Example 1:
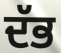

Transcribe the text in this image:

ਦੱਭ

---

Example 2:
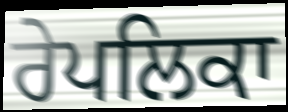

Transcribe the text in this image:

ਰੇਪਲਿਕਾ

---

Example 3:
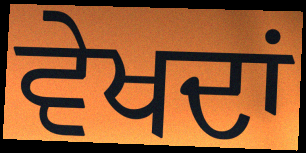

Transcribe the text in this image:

ਵੇਖਦਾਂ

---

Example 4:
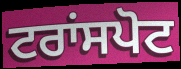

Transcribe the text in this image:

ਟਰਾਂਸਪੋਟ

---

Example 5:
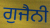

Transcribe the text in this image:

ਗੁਜੈਨੀ